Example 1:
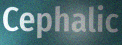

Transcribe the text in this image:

Cephalic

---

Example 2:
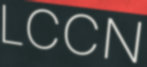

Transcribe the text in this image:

LCCN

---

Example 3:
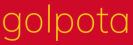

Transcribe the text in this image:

golpota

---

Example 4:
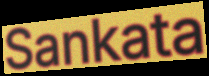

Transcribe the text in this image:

Sankata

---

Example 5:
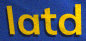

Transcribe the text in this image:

latd